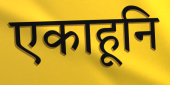
एकाहूनि